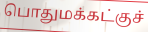
பொதுமக்கட்குச்